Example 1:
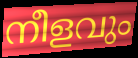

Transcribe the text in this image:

നീളവും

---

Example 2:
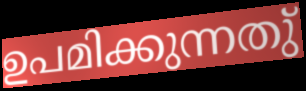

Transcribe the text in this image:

ഉപമിക്കുന്നതു്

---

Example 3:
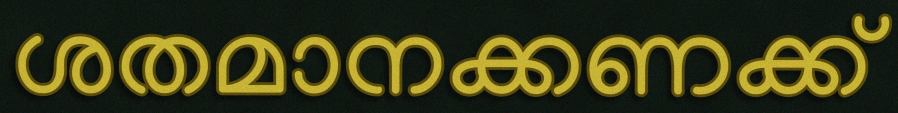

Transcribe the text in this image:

ശതമാനക്കണക്ക്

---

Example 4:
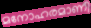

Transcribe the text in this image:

മനോഹരമാണീ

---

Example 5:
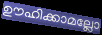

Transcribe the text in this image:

ഊഹിക്കാമല്ലോ